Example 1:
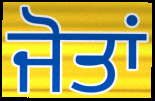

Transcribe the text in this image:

ਜੋਤਾਂ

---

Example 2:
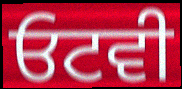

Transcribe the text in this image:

ਓਟਵੀ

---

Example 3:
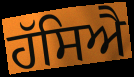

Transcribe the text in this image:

ਹੱਸਿਐ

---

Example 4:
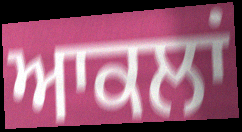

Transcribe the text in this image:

ਆਕਲਾਂ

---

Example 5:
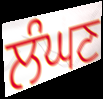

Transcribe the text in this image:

ਲੰਘਣ